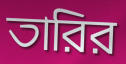
তারির